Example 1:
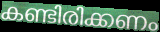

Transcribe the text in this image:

കണ്ടിരിക്കണം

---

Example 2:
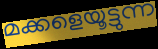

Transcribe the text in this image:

മക്കളെയൂട്ടുന്ന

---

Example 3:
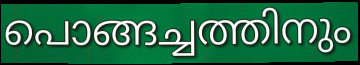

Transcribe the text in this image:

പൊങ്ങച്ചത്തിനും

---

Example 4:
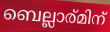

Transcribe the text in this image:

ബെല്ലാര്മിന്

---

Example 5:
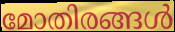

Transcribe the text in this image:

മോതിരങ്ങൾ